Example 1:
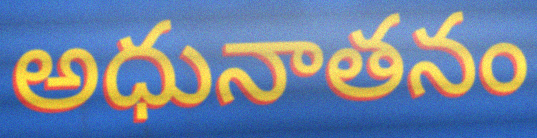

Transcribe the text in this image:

అధునాతనం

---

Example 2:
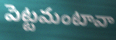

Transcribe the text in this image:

పెట్టమంటావా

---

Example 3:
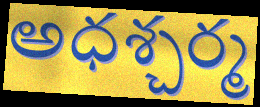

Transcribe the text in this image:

అధశ్చర్మ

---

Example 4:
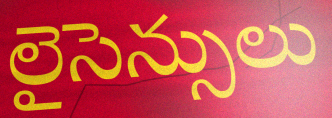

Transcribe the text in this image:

లైసెన్సులు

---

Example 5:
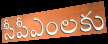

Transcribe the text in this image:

సీపీఎంలకు